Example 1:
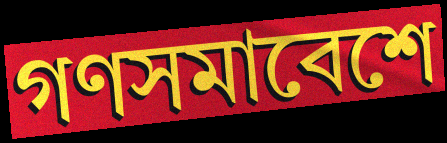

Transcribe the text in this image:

গণসমাবেশে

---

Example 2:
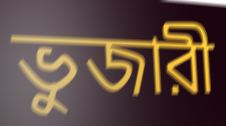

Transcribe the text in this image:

ভুজারী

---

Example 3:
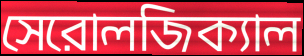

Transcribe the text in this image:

সেরোলজিক্যাল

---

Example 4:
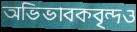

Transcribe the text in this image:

অভিভাবকবৃন্দও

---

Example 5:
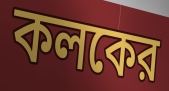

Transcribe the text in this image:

কলকের